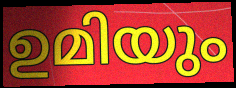
ഉമിയും